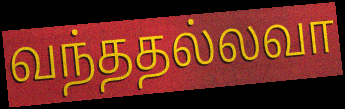
வந்ததல்லவா